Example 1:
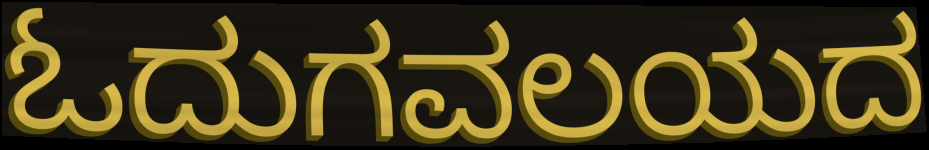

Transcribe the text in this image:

ಓದುಗವಲಯದ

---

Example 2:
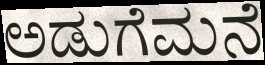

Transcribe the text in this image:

ಅಡುಗೆಮನೆ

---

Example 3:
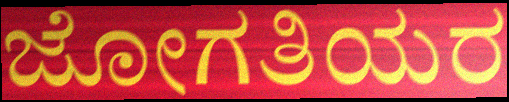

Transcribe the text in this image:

ಜೋಗತಿಯರ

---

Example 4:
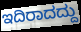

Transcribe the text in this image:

ಇದಿರಾದದ್ದು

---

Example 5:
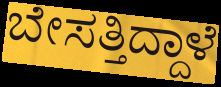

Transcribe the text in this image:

ಬೇಸತ್ತಿದ್ದಾಳೆ